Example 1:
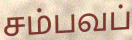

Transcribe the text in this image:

சம்பவப்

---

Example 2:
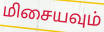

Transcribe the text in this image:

மிசையவும்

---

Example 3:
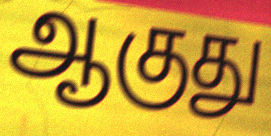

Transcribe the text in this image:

ஆகுது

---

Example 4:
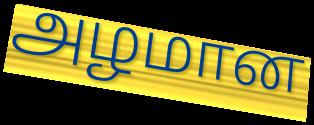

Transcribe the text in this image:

அழமான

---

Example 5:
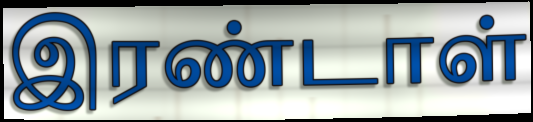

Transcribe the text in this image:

இரண்டாள்